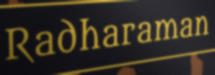
Radharaman